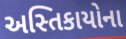
અસ્તિકાયોના